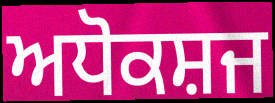
ਅਧੋਕਸ਼ਜ